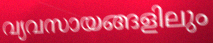
വ്യവസായങ്ങളിലും